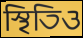
স্থিতিও